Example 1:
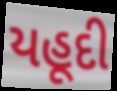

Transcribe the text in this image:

યહૂદી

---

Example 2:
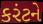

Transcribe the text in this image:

કરંટને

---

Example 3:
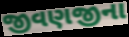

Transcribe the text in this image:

જીવણજીના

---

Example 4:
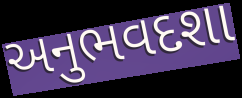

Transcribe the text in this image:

અનુભવદશા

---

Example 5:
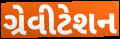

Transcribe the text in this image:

ગ્રેવીટેશન